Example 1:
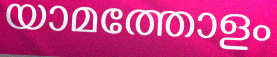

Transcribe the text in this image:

യാമത്തോളം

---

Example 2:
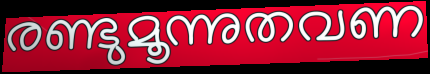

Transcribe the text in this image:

രണ്ടുമൂന്നുതവണ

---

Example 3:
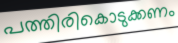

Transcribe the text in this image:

പത്തിരികൊടുക്കണം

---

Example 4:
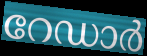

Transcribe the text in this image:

റേഡാർ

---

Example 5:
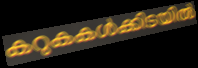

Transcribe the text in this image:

കറുകകൾക്കിടയിൽ